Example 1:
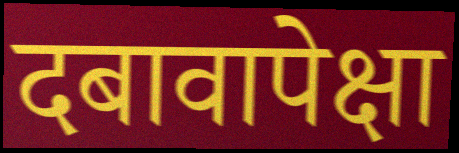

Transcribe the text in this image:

दबावापेक्षा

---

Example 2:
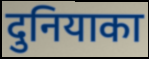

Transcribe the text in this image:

दुनियाका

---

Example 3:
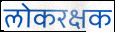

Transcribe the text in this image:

लोकरक्षक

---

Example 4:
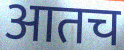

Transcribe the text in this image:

आतच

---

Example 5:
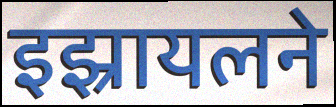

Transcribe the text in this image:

इझ्रायलने